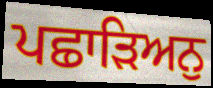
ਪਛਾੜਿਅਨੁ